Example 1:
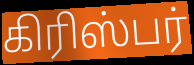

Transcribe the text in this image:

கிரிஸ்பர்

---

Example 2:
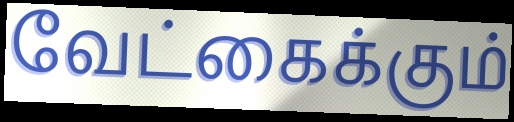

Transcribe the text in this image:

வேட்கைக்கும்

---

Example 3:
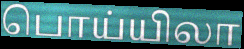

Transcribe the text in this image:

பொய்யிலா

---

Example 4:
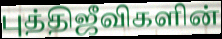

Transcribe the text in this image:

புத்திஜீவிகளின்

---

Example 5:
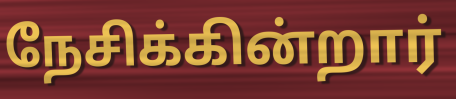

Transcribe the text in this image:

நேசிக்கின்றார்